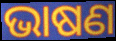
ଭାଷଣ